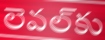
లెవల్‌కు